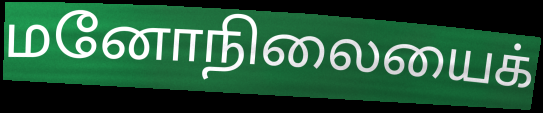
மனோநிலையைக்